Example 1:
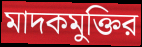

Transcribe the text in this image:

মাদকমুক্তির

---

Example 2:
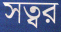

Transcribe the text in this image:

সত্বর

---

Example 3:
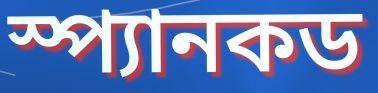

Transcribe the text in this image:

স্প্যানকড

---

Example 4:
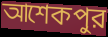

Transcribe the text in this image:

আশেকপুর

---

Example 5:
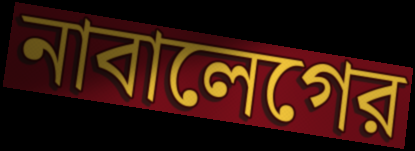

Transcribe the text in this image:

নাবালেগের